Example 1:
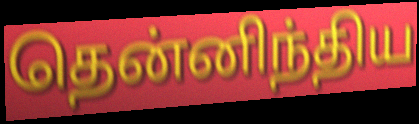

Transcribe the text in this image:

தென்னிந்திய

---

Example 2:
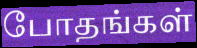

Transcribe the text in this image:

போதங்கள்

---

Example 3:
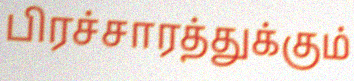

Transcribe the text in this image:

பிரச்சாரத்துக்கும்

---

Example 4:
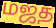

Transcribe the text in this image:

மஜத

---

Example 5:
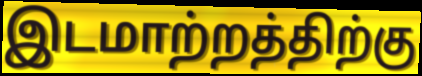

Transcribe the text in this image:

இடமாற்றத்திற்கு